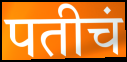
पतीचं